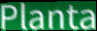
Planta